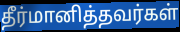
தீர்மானித்தவர்கள்